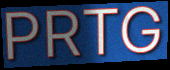
PRTG